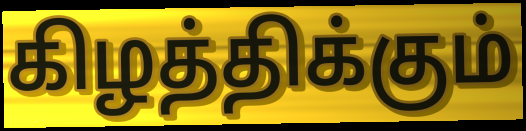
கிழத்திக்கும்